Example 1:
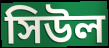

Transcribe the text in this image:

সিউল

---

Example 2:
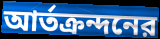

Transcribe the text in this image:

আর্তক্রন্দনের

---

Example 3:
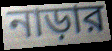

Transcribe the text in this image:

নাড়ার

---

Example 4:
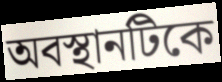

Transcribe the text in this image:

অবস্থানটিকে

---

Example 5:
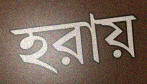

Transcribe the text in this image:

হরায়